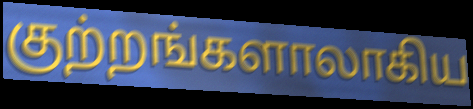
குற்றங்களாலாகிய